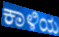
ಕಾಳಿಯ